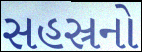
સહસ્રનો